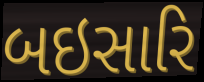
બઇસારિ